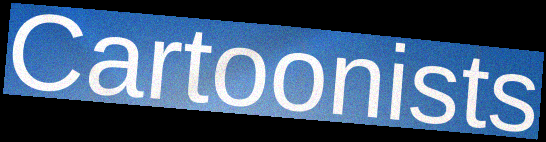
Cartoonists